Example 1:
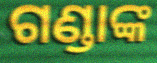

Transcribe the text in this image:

ଗଣ୍ଡାଙ୍କ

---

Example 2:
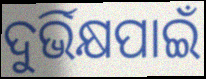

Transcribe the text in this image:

ଦୁର୍ଭିକ୍ଷପାଇଁ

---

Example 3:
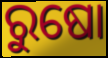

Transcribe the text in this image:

ରୁଷୋ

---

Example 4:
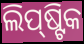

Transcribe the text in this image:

ଲିପ୍‌ଷ୍ଟିକ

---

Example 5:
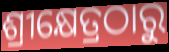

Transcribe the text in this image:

ଶ୍ରୀକ୍ଷେତ୍ରଠାରୁ